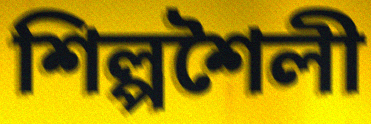
শিল্পশৈলী